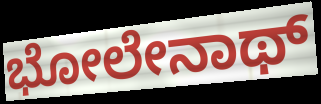
ಭೋಲೇನಾಥ್